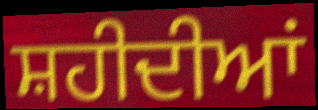
ਸ਼ਹੀਦੀਆਂ